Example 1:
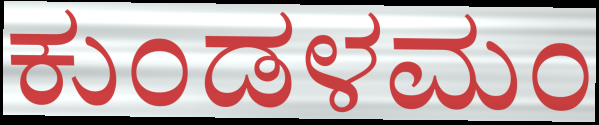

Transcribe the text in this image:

ಕುಂಡಳಮಂ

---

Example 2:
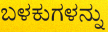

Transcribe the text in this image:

ಬಳಕುಗಳನ್ನು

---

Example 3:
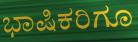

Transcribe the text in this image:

ಭಾಷಿಕರಿಗೂ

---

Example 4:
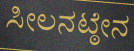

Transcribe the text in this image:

ಸೀಲನಟ್ಠೇನ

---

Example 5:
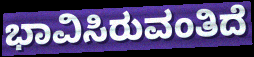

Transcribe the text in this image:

ಭಾವಿಸಿರುವಂತಿದೆ